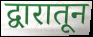
द्वारातून